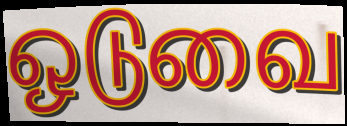
ஒடுவை